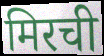
मिरची